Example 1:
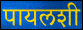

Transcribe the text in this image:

पायलशी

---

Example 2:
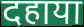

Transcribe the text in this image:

दहाया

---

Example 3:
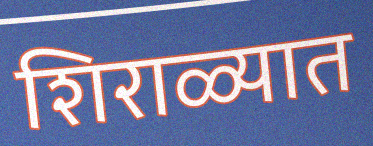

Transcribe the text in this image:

शिराळ्यात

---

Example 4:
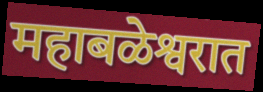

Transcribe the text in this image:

महाबळेश्वरात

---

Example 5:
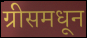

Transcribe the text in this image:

ग्रीसमधून